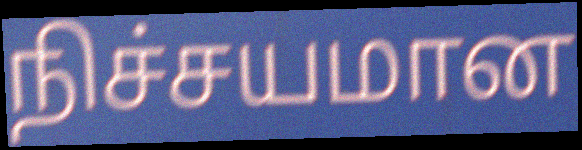
நிச்சயமான